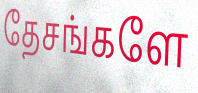
தேசங்களே